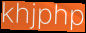
khjphp